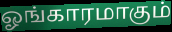
ஓங்காரமாகும்